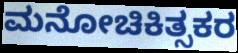
ಮನೋಚಿಕಿತ್ಸಕರ